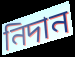
নিদান